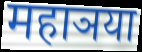
महाञया